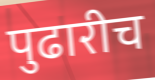
पुढारीच